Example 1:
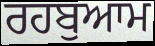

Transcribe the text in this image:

ਰਹਬੁਆਮ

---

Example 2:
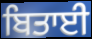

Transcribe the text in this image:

ਬਿਤਾਈ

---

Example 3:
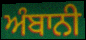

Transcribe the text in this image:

ਅੰਬਾਨੀ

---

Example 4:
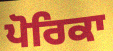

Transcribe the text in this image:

ਪੋਰਿਕਾ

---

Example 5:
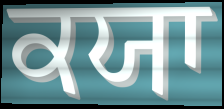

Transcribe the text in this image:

ਕਯਾ